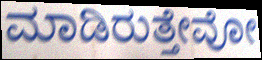
ಮಾಡಿರುತ್ತೇವೋ